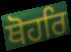
ਥੋਹਰਿ